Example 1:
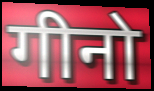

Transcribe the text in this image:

गीनो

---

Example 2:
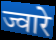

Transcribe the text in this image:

ज्वारे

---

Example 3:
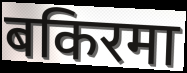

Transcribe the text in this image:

बकिरमा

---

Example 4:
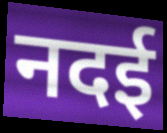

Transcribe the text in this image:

नदई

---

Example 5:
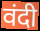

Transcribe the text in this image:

वंदी